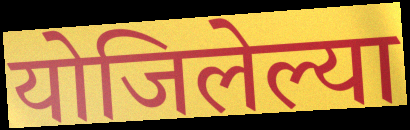
योजिलेल्या